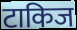
टाकिज